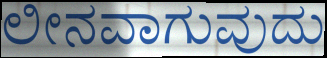
ಲೀನವಾಗುವುದು